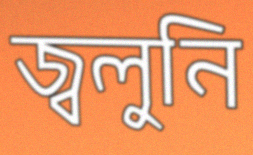
জ্বলুনি